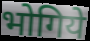
भोगिये